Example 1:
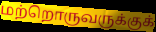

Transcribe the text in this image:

மற்றொருவருக்குக்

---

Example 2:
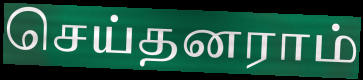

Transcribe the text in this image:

செய்தனராம்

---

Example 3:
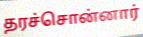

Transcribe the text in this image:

தரச்சொன்னார்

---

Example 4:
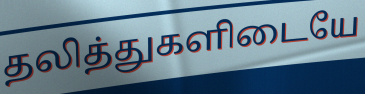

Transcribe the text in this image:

தலித்துகளிடையே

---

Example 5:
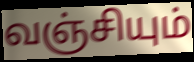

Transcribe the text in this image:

வஞ்சியும்